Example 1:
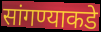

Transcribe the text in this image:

सांगण्याकडे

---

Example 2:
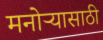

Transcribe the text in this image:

मनोऱ्यासाठी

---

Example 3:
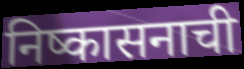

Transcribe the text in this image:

निष्कासनाची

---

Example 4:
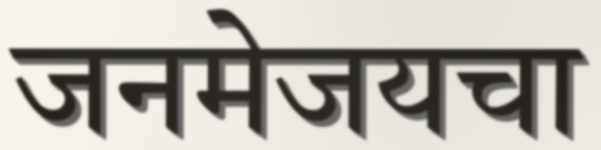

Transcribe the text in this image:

जनमेजयचा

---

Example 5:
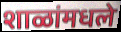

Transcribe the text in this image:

शाळांमधले